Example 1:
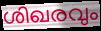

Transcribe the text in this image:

ശിഖരവും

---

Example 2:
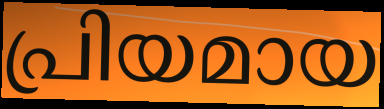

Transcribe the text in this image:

പ്രിയമായ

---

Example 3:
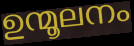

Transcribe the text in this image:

ഉന്മൂലനം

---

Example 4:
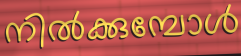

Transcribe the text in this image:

നിൽക്കുമ്പോൾ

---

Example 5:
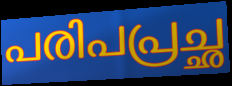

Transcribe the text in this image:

പരിപപ്രച്ഛ